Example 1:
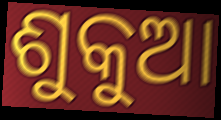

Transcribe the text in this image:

ଶୁକୁଆ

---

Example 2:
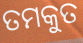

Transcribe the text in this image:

ତମକୁତ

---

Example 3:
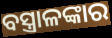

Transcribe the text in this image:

ବସ୍ତ୍ରାଳଙ୍କାର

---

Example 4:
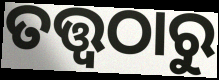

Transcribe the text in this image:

ତତ୍ତ୍ବଠାରୁ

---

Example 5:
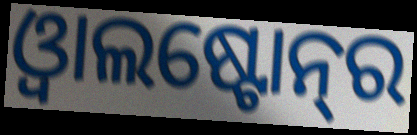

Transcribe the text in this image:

ଓ୍ୱାଲଷ୍ଟୋନ୍‌ର